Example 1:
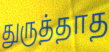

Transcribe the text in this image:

துருத்தாத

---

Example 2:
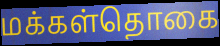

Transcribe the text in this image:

மக்கள்தொகை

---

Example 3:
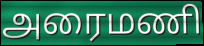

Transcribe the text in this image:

அரைமணி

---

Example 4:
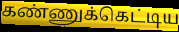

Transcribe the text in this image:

கண்ணுக்கெட்டிய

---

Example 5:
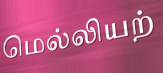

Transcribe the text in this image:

மெல்லியற்